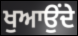
ਖੁਆਉਂਦੇ